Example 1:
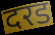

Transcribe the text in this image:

दरड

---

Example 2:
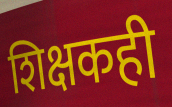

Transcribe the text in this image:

शिक्षकही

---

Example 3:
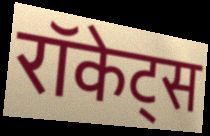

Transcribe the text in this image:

रॉकेट्स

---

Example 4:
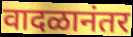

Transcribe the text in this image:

वादळानंतर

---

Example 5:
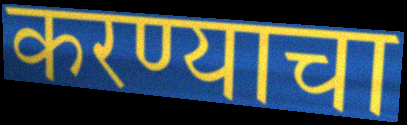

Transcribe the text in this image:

करण्याचा